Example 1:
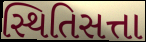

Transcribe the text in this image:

સ્થિતિસત્તા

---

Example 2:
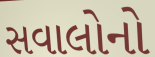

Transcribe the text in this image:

સવાલોનો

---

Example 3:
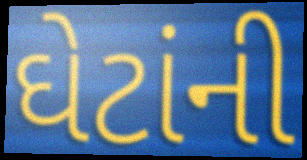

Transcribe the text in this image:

ઘેટાંની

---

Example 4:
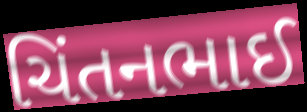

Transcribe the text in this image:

ચિંતનભાઈ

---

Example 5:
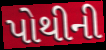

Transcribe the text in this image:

પોથીની